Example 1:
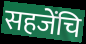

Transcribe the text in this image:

सहजेंचि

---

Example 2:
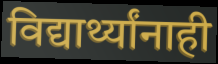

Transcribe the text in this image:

विद्यार्थ्यांनाही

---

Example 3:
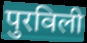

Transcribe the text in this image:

पुरविली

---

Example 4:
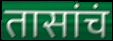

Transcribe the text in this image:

तासांचं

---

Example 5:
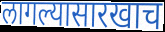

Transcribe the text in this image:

लागल्यासारखाच